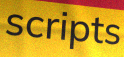
scripts